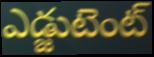
ఎడ్జుటెంట్